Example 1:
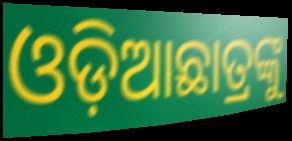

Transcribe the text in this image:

ଓଡ଼ିଆଛାତ୍ରଙ୍କୁ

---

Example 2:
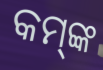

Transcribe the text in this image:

କମ୍‌ଙ୍କ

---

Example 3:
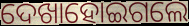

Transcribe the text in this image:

ଦେଖାହୋଇଗଲେ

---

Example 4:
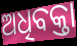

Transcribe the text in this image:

ଅଧିବକ୍ତା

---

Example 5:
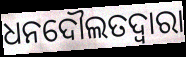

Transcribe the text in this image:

ଧନଦୌଲତଦ୍ଵାରା